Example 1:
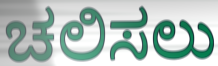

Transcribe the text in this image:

ಚಲಿಸಲು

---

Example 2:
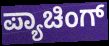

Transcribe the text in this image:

ಪ್ಯಾಚಿಂಗ್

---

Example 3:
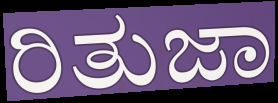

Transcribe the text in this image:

ರಿತುಜಾ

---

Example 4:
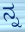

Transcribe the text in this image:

ನ್ನ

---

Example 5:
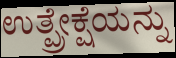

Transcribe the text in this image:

ಉತ್ಪ್ರೇಕ್ಷೆಯನ್ನು